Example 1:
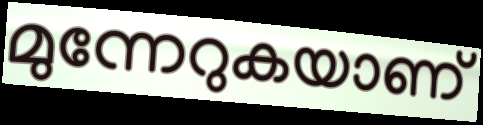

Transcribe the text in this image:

മുന്നേറുകയാണ്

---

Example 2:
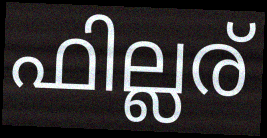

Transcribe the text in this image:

ഫില്ലര്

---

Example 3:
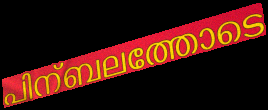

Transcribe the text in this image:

പിന്ബലത്തോടെ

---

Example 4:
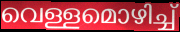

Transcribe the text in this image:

വെള്ളമൊഴിച്ച്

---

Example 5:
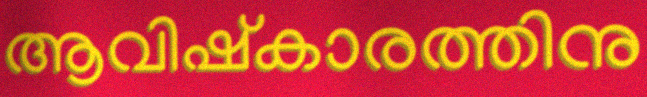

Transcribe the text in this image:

ആവിഷ്കാരത്തിനു